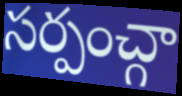
సర్పంచ్గా